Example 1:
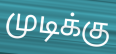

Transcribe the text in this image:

முடிக்கு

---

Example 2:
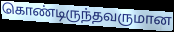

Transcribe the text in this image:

கொண்டிருந்தவருமான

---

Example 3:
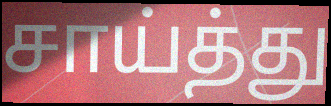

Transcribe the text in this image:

சாய்த்து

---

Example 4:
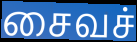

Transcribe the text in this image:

சைவச்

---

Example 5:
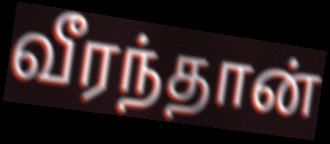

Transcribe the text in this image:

வீரந்தான்